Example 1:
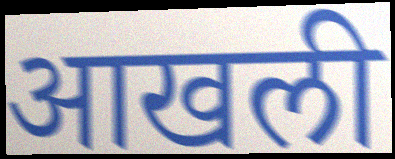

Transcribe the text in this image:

आखली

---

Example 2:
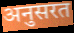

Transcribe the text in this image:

अनुसरत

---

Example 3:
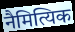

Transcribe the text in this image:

नैमित्यिक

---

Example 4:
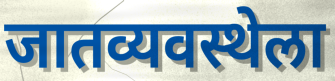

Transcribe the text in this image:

जातव्यवस्थेला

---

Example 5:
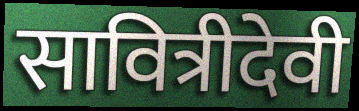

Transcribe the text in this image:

सावित्रीदेवी